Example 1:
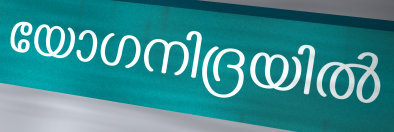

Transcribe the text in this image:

യോഗനിദ്രയിൽ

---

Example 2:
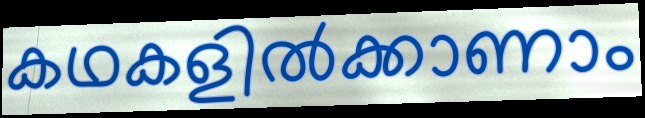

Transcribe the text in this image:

കഥകളിൽക്കാണാം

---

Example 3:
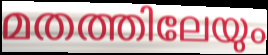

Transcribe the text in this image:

മതത്തിലേയും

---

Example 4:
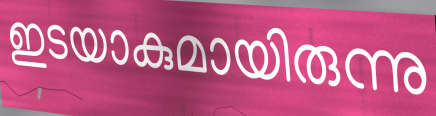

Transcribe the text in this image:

ഇടയാകുമായിരുന്നു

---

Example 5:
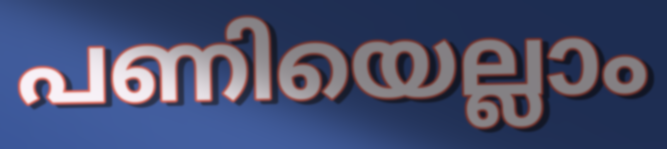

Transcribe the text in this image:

പണിയെല്ലാം